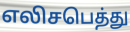
எலிசபெத்து